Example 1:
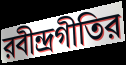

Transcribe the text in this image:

রবীন্দ্রগীতির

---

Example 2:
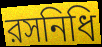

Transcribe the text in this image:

রসনিধি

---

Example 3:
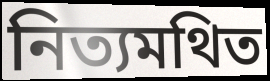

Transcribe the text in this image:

নিত্যমথিত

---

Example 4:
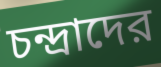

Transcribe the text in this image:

চন্দ্রাদের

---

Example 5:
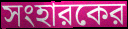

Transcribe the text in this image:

সংহারকের